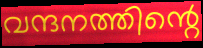
വന്ദനത്തിന്റെ